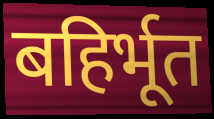
बहिर्भूत